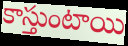
కాస్తుంటాయి